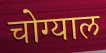
चोग्याल